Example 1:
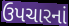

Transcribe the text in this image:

ઉપચારનાં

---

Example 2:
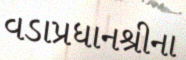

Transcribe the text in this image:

વડાપ્રધાનશ્રીના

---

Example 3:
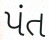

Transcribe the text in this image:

પંત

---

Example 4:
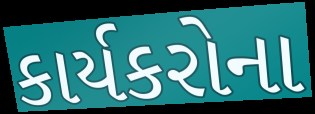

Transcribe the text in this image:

કાર્યકરોના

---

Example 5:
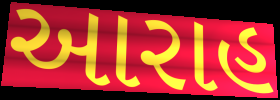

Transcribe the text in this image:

આરાહ